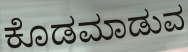
ಕೊಡಮಾಡುವ